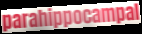
parahippocampal